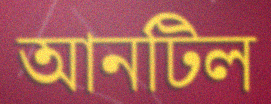
আনটিল